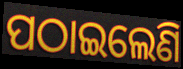
ପଠାଇଲେଣି